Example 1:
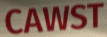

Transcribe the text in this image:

CAWST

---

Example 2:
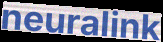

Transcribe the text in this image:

neuralink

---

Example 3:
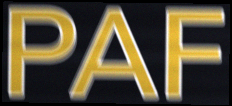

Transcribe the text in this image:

PAF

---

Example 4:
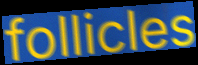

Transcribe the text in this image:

follicles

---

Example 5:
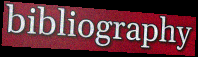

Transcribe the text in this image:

bibliography